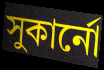
সুকার্নো